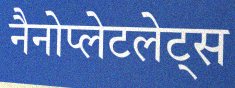
नैनोप्लेटलेट्स